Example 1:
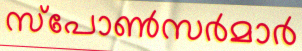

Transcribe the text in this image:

സ്പോൺസർമാർ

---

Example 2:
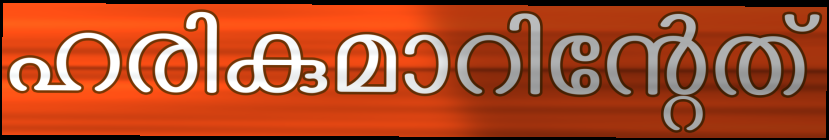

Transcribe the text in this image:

ഹരികുമാറിന്റേത്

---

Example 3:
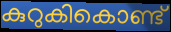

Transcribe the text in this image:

കുറുകികൊണ്ട്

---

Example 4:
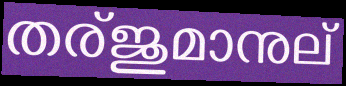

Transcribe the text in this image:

തര്ജുമാനുല്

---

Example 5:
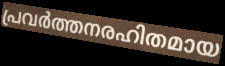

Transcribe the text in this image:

പ്രവർത്തനരഹിതമായ